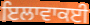
ਇਲਾਵਾਕਈ